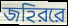
জহিররে